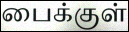
பைக்குள்